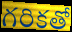
గరికతో